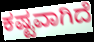
ಕಷ್ಟವಾಗಿದೆ